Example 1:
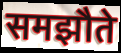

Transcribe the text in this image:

समझौते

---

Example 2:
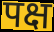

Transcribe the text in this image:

पक्ष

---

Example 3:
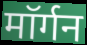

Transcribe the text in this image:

मॉर्गन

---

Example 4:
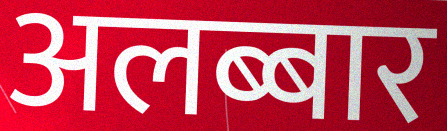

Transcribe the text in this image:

अलब्बार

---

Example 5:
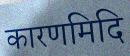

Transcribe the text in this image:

कारणमिदि